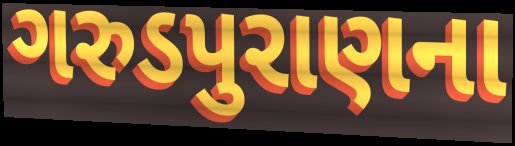
ગરુડપુરાણના